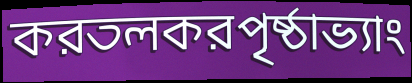
করতলকরপৃষ্ঠাভ্যাং